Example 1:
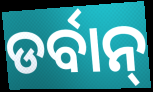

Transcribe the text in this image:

ଡର୍ବାନ୍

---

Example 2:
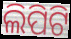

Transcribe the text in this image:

ଲିପିଟି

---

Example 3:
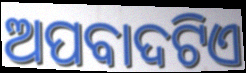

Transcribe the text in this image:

ଅପବାଦଟିଏ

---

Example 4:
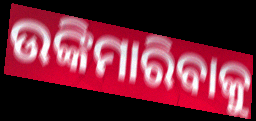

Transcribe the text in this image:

ଉଙ୍କିମାରିବାକୁ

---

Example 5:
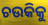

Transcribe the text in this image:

ଚଉକିକୁ